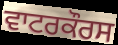
ਵਾਟਰਕੌਰਸ